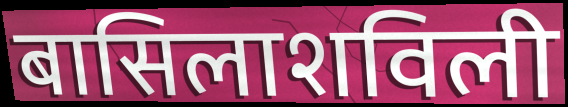
बासिलाशविली